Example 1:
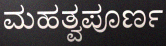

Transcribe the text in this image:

ಮಹತ್ವಪೂರ್ಣ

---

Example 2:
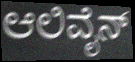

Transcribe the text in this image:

ಆಲಿವೈನ್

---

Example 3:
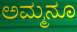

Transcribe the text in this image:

ಅಮ್ಮನೂ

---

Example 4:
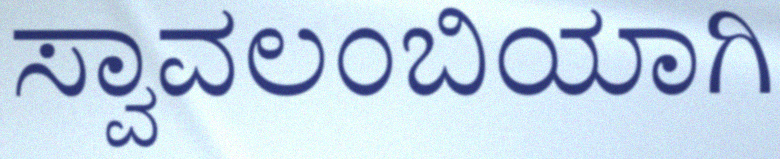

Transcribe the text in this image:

ಸ್ವಾವಲಂಬಿಯಾಗಿ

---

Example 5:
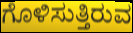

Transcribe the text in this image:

ಗೊಳಿಸುತ್ತಿರುವ